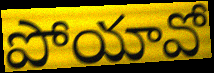
పోయావో